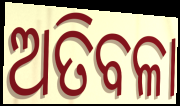
ଅତିବଳା